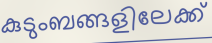
കുടുംബങ്ങളിലേക്ക്